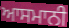
ਆਸਮਾਨੀ